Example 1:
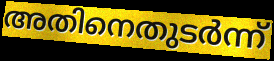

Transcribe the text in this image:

അതിനെതുടർന്ന്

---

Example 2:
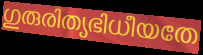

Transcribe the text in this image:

ഗുരുരിത്യഭിധീയതേ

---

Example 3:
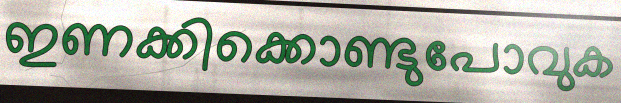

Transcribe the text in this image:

ഇണക്കിക്കൊണ്ടുപോവുക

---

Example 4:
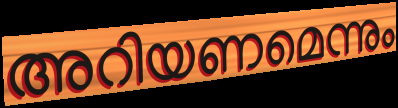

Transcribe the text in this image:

അറിയണമെന്നും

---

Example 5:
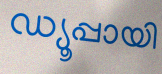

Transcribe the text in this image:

ഡ്യൂപ്പായി